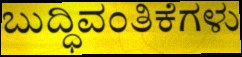
ಬುದ್ಧಿವಂತಿಕೆಗಳು